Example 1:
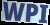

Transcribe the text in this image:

WPI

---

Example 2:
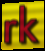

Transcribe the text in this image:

rk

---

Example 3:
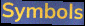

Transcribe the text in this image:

Symbols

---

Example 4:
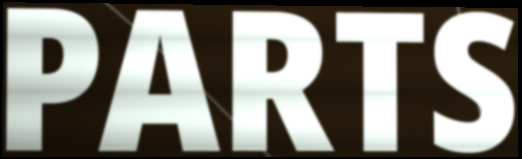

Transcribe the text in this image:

PARTS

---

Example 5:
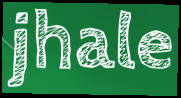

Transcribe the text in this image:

jhale